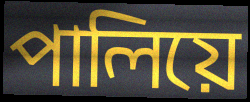
পালিয়ে